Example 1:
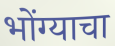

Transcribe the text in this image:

भोंग्याचा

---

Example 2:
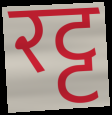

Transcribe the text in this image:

रट्ट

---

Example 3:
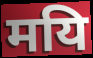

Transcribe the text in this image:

मयि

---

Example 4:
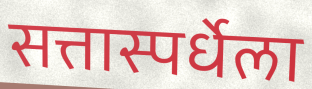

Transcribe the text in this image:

सत्तास्पर्धेला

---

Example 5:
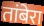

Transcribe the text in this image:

तांबेरा